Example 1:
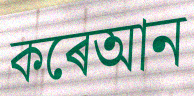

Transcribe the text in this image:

কৰেআন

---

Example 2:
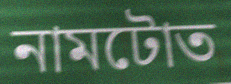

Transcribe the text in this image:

নামটোত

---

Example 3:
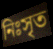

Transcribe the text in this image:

নিঃসৃত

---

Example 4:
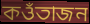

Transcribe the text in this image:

কওঁতাজন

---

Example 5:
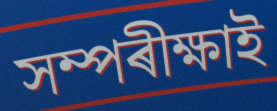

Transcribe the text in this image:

সম্পৰীক্ষাই